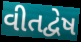
વીતદ્વેષ